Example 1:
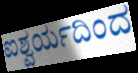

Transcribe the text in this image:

ಐಶ್ವರ್ಯದಿಂದ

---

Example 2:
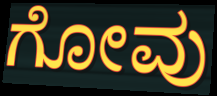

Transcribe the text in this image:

ಗೋವು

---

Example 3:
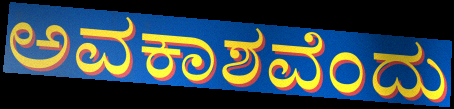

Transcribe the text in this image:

ಅವಕಾಶವೆಂದು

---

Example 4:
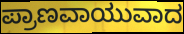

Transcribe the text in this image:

ಪ್ರಾಣವಾಯುವಾದ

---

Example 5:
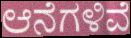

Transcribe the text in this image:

ಆನೆಗಳಿವೆ